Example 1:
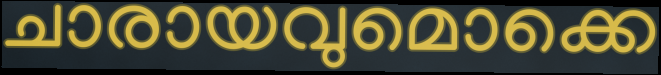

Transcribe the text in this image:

ചാരായവുമൊക്കെ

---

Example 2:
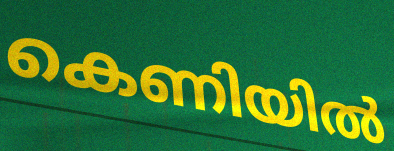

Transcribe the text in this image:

കെണിയിൽ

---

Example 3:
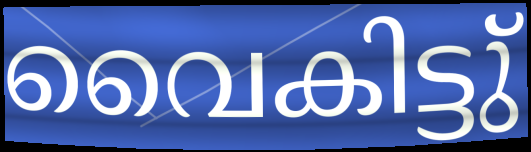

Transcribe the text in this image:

വൈകിട്ടു്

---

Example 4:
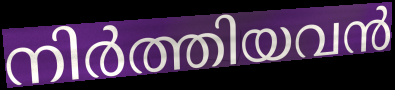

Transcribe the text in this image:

നിർത്തിയവൻ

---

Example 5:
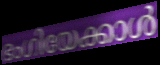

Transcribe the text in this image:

ഭംഗിയേക്കാൾ